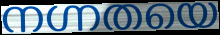
നഗ്നതയെ